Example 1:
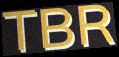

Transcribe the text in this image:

TBR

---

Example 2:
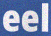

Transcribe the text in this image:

eel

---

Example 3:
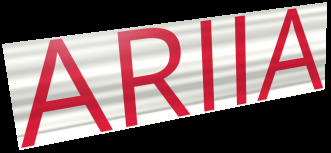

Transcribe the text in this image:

ARIIA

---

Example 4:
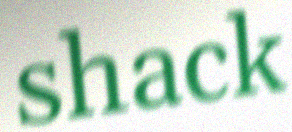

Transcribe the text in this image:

shack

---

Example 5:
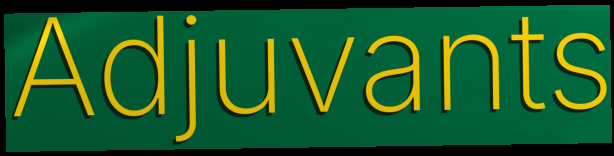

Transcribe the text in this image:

Adjuvants